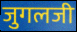
जुगलजी